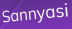
Sannyasi